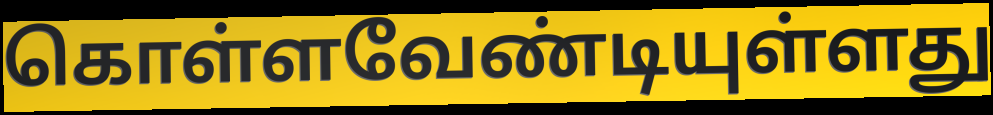
கொள்ளவேண்டியுள்ளது